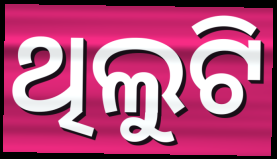
ଥିଲୁଟି